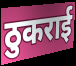
ठुकराई